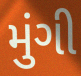
મુંગી